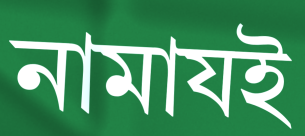
নামাযই